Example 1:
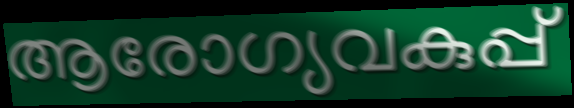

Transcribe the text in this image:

ആരോഗ്യവകുപ്പ്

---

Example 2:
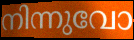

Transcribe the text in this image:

നിന്നുവോ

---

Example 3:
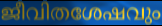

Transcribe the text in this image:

ജീവിതശേഷവും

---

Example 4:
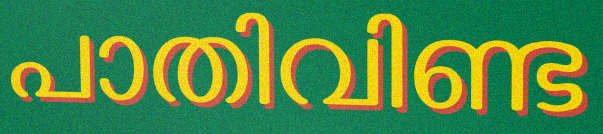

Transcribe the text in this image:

പാതിവിണ്ട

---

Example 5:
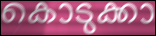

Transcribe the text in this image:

കൊടുക്കാ